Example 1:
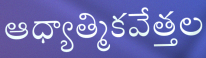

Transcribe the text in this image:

ఆధ్యాత్మికవేత్తల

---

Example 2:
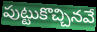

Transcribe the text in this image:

పుట్టుకొచ్చినవే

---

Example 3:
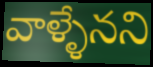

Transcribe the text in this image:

వాళ్ళేనని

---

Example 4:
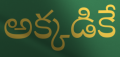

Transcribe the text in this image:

అక్కడికే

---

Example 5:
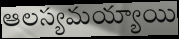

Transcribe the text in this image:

ఆలస్యమయ్యాయి